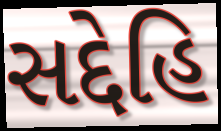
સદ્દેહિ